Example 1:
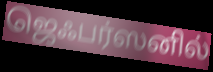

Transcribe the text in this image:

ஜெஃபர்ஸனில்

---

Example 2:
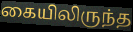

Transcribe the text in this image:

கையிலிருந்த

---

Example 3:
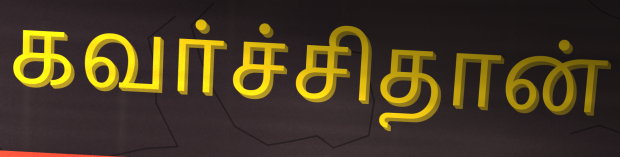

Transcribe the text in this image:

கவர்ச்சிதான்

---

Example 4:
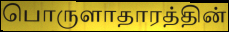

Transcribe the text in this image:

பொருளாதாரத்தின்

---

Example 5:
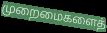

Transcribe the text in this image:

முறைமைகளைத்